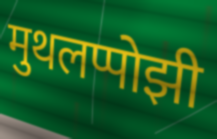
मुथलप्पोझी